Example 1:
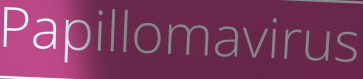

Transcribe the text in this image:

Papillomavirus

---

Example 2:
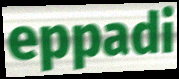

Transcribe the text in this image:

eppadi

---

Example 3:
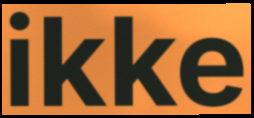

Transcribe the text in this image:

ikke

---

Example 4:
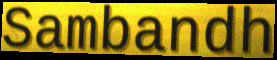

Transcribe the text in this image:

Sambandh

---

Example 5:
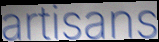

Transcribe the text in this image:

artisans